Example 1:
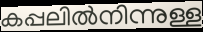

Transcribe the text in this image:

കപ്പലിൽനിന്നുള്ള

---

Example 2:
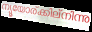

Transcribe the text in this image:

ന്യൂയോര്ക്കില്നിന്നു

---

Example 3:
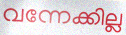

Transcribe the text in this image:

വന്നേക്കില്ല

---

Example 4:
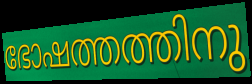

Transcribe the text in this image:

ഭോഷത്തത്തിനു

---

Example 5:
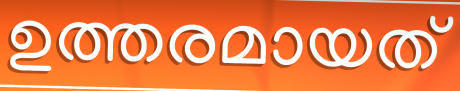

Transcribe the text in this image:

ഉത്തരമായത്